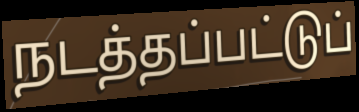
நடத்தப்பட்டுப்